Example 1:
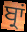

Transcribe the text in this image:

ਬ੍ਰਾਂ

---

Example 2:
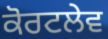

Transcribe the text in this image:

ਕੋਰਟਲੇਵ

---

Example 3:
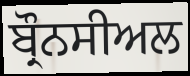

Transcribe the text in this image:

ਬ੍ਰੌਨਸੀਅਲ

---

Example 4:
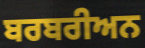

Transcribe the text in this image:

ਬਰਬਰੀਅਨ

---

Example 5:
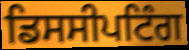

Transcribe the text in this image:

ਡਿਸਸੀਪਟਿੰਗ